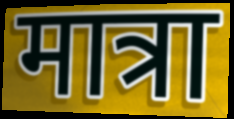
मात्रा